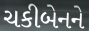
ચકીબેનને